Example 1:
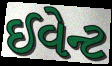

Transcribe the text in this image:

ઈવેન્ટ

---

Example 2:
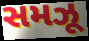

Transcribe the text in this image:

સમઝૂ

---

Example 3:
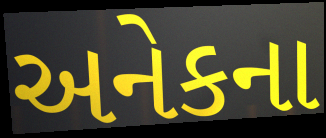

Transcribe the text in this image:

અનેકના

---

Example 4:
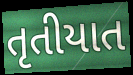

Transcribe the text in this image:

તૃતીયાત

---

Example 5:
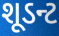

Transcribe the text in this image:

શૂડન્ટ